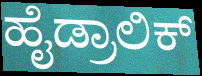
ಹೈಡ್ರಾಲಿಕ್